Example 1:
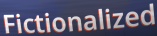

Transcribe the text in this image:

Fictionalized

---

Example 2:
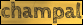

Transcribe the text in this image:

champal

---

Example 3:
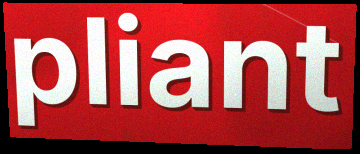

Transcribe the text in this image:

pliant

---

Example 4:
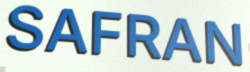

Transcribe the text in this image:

SAFRAN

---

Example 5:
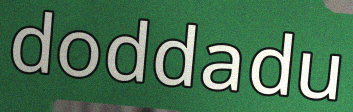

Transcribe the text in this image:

doddadu